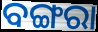
ବଙ୍ଗରା